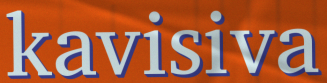
kavisiva